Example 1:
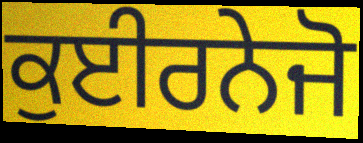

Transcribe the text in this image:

ਕੁਈਰਨੇਜੋ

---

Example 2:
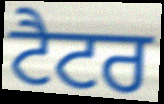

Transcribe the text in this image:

ਟੈਟਰ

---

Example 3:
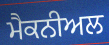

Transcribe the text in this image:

ਮੈਕਨੀਅਲ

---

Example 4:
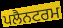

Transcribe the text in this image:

ਪਲੈਨਟਰਮ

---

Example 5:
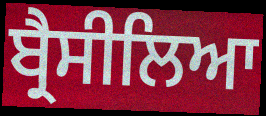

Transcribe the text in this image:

ਬ੍ਰੈਸੀਲਿਆ